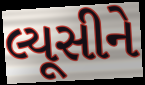
લ્યૂસીને